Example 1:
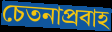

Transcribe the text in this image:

চেতনাপ্রবাহ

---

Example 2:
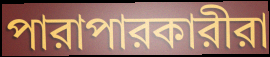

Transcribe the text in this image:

পারাপারকারীরা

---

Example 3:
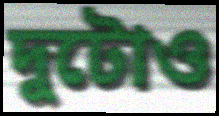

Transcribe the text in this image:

দুটোও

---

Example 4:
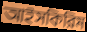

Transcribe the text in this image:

আইসকিরিম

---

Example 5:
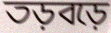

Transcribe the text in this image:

তড়বড়ে